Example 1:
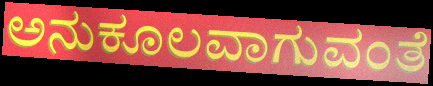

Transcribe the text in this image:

ಅನುಕೂಲವಾಗುವಂತೆ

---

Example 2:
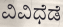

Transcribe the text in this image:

ವಿವಿಧೆಡೆ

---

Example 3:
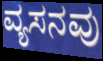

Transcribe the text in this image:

ವ್ಯಸನವು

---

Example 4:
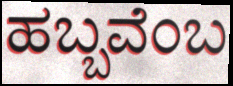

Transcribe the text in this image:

ಹಬ್ಬವೆಂಬ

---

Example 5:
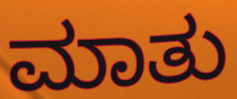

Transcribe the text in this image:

ಮಾತು